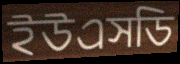
ইউএসডি